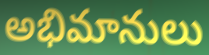
అభిమానులు